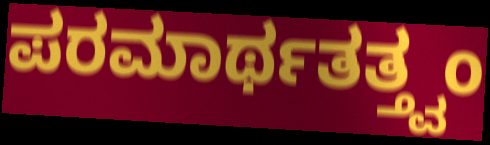
ಪರಮಾರ್ಥತತ್ತ್ವಂ